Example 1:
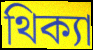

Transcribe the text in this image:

থিক্যা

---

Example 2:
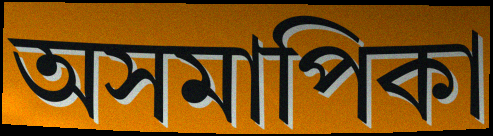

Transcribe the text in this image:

অসমাপিকা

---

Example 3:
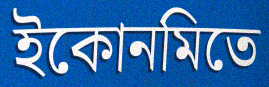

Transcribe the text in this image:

ইকোনমিতে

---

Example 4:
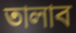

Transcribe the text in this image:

তালাব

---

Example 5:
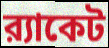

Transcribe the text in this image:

র‍্যাকেট